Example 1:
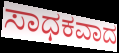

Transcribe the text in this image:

ಸಾಧಕವಾದ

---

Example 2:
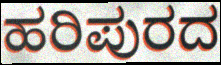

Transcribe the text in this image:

ಹರಿಪುರದ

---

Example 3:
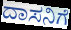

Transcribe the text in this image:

ದಾಸನಿಗೆ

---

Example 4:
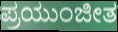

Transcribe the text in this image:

ಪ್ರಯುಂಜೀತ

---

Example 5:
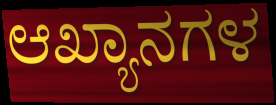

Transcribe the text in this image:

ಆಖ್ಯಾನಗಳ